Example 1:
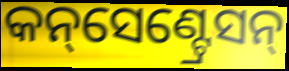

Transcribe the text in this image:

କନ୍‌ସେଣ୍ଟ୍ରେସନ୍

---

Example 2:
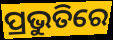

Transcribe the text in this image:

ପ୍ରଭୁତିରେ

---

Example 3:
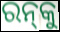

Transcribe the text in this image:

ରନ୍‌କୁ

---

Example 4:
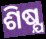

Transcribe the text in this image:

ଶିଷ୍ଯ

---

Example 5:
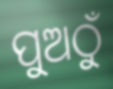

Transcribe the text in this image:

ପୁଅଠୁଁ